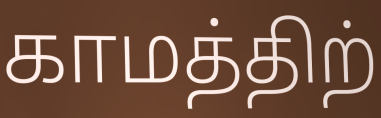
காமத்திற்